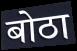
बोठा